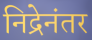
निद्रेनंतर